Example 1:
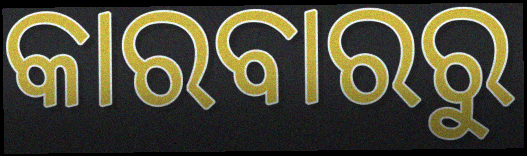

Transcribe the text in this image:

କାରବାରରୁ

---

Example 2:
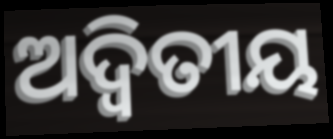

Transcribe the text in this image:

ଅଦ୍ୱିତୀୟ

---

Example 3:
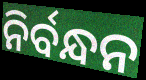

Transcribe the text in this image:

ନିର୍ବନ୍ଧନ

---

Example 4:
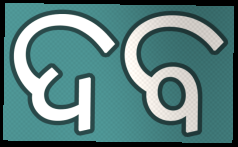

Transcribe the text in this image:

ଦବ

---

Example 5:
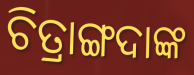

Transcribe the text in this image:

ଚିତ୍ରାଙ୍ଗଦାଙ୍କ